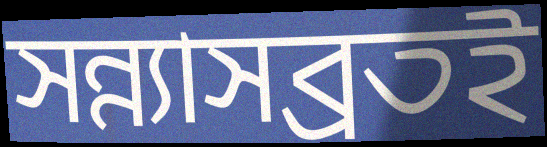
সন্ন্যাসব্রতই